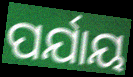
ପର୍ଯାୟ